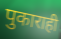
पुकाराही